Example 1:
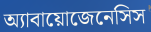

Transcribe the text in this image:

অ্যাবায়োজেনেসিস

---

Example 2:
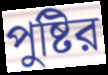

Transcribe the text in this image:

পুষ্টির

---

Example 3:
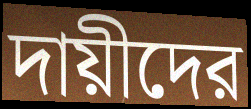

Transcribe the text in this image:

দায়ীদের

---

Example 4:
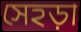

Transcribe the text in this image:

সেহড়া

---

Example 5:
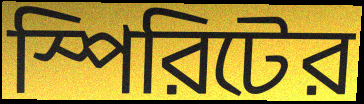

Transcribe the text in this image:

স্পিরিটের